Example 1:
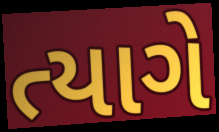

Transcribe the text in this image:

ત્યાગે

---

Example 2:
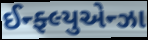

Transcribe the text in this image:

ઈન્ફ્લ્યુએન્ઝા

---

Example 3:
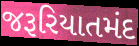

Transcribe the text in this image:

જરૂરિયાતમંદ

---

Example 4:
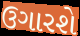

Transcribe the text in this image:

ઉગારશે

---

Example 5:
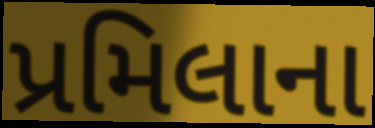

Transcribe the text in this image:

પ્રમિલાના